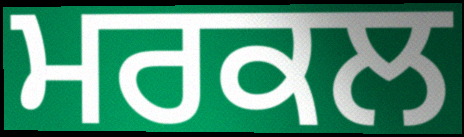
ਮਰਕਲ